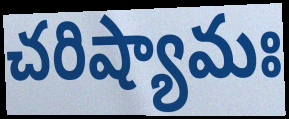
చరిష్యామః